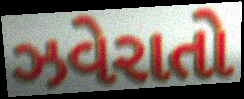
ઝવેરાતો